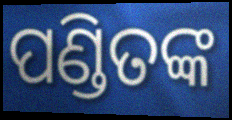
ପଣ୍ଡିତଙ୍କ